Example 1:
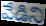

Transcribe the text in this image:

వేడిని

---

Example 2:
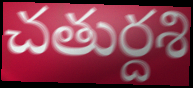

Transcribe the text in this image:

చతుర్దశి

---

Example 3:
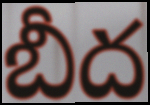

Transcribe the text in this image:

బీద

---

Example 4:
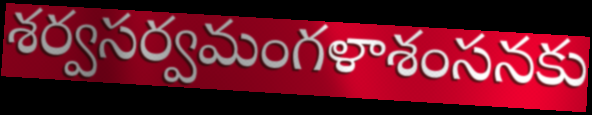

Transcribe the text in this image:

శర్వసర్వమంగళాశంసనకు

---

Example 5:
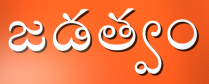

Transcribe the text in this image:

జడత్వం